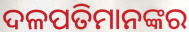
ଦଳପତିମାନଙ୍କର